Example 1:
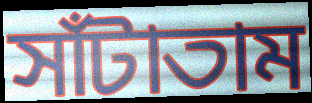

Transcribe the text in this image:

সাঁটাতাম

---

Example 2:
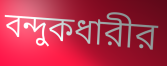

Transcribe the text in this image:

বন্দুকধারীর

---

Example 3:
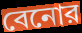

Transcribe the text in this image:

বেনোর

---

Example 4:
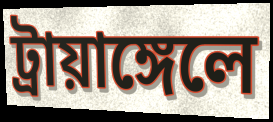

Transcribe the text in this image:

ট্রায়াঙ্গেলে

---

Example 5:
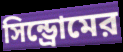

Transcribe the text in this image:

সিন্ড্রোমের